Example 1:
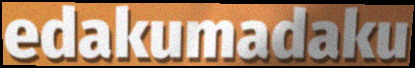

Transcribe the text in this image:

edakumadaku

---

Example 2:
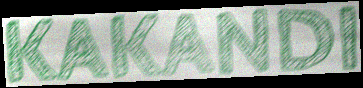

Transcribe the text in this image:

KAKANDI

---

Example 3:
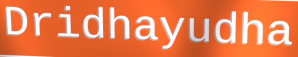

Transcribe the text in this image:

Dridhayudha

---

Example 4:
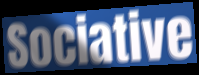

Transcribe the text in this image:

Sociative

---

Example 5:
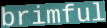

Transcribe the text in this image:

brimful